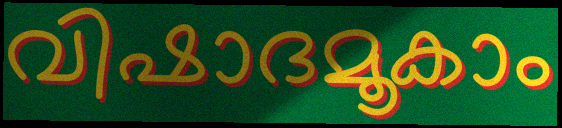
വിഷാദമൂകാം